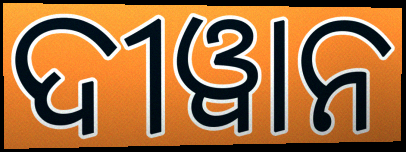
ଦୀୱାନ